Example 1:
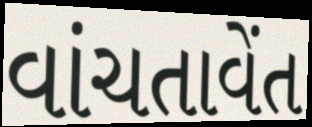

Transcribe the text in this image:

વાંચતાવેંત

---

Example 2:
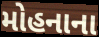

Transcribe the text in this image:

મોહનાના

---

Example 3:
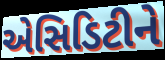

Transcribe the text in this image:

એસિડિટીને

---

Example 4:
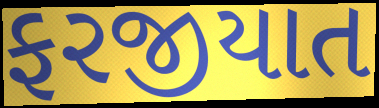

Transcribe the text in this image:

ફરજીયાત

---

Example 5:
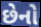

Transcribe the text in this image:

છેનો